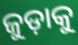
ଜୁଡ଼ାକୁ